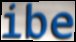
ibe